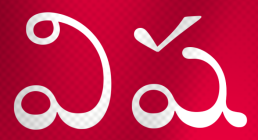
విష